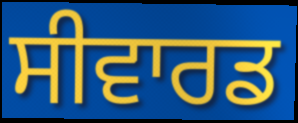
ਸੀਵਾਰਡ